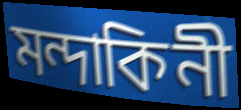
মন্দাকিনী